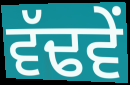
ਵੱਢਵੇਂ